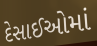
દેસાઈઓમાં